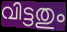
വിട്ടതും